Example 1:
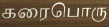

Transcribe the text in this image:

கரைபொரு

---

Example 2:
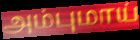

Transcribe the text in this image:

அம்புமாய்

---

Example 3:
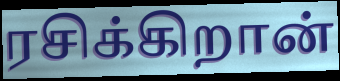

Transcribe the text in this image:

ரசிக்கிறான்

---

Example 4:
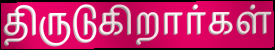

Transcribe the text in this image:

திருடுகிறார்கள்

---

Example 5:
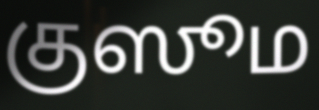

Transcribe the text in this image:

குஸூம